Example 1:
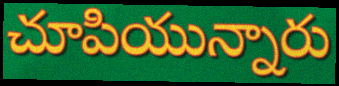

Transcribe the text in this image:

చూపియున్నారు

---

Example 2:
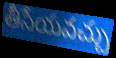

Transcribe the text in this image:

తీసేయవచ్చు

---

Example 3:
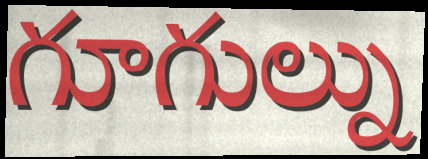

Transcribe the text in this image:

గూగుల్ను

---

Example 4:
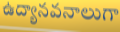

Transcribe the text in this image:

ఉద్యానవనాలుగా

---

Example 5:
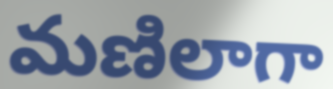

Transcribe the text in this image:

మణిలాగా